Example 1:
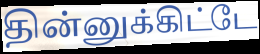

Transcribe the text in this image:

தின்னுக்கிட்டே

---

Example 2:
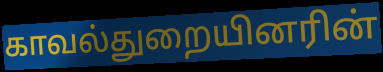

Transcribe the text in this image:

காவல்துறையினரின்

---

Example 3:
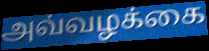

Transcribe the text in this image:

அவ்வழக்கை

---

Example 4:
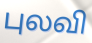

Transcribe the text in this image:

புலவி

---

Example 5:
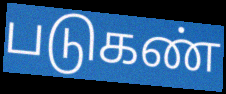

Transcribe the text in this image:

படுகண்